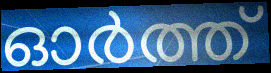
ഓർത്ത്